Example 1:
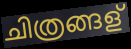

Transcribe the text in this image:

ചിത്രങ്ങള്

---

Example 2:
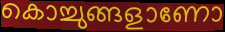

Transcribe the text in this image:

കൊച്ചുങ്ങളാണോ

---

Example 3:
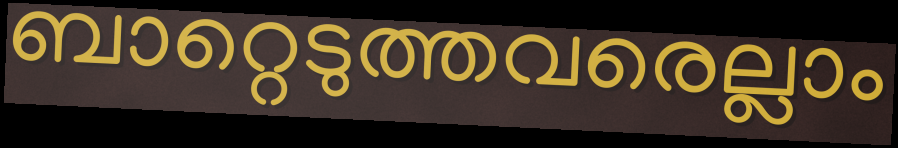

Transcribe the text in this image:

ബാറ്റെടുത്തവരെല്ലാം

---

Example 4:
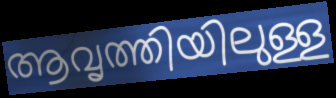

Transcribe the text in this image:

ആവൃത്തിയിലുള്ള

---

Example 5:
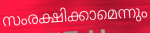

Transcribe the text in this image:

സംരക്ഷിക്കാമെന്നും